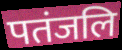
पतंजलि